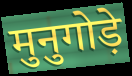
मुनुगोड़े